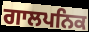
ਗਾਲਪਨਿਕ